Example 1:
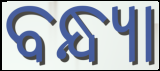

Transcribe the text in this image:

ବନ୍ଧ୍ୟା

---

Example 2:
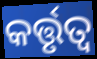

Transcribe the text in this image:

କର୍ତ୍ତୃତ୍ଵ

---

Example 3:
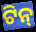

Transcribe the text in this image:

ଟିନ୍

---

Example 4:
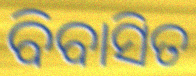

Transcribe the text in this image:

ବିବାସିତ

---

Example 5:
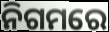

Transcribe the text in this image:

ନିଗମରେ